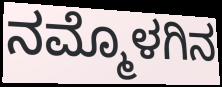
ನಮ್ಮೊಳಗಿನ